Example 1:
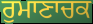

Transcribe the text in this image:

ਰੁਮਾਣਾਚਕ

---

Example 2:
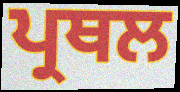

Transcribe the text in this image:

ਪ੍ਰਥਲ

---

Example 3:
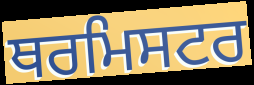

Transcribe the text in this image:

ਥਰਮਿਸਟਰ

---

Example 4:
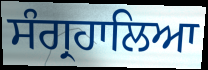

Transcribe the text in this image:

ਸੰਗ੍ਰਹਾਲਿਆ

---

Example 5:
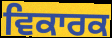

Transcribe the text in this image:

ਵਿਕਾਰਕ